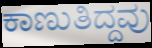
ಕಾಣುತಿದ್ದವು